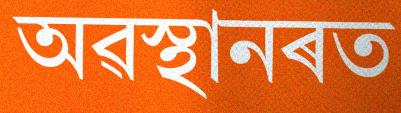
অৱস্থানৰত